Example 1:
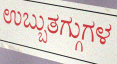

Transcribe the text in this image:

ಉಬ್ಬುತಗ್ಗುಗಳ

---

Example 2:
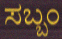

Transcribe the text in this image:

ಸಬ್ಬಂ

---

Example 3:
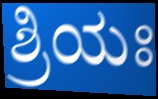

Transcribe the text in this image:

ಶ್ರಿಯಃ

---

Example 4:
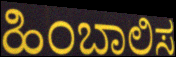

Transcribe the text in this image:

ಹಿಂಬಾಲಿಸ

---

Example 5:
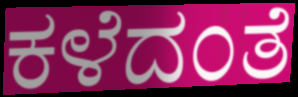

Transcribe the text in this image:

ಕಳೆದಂತೆ